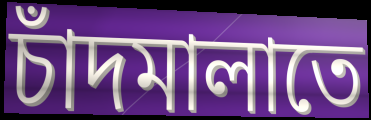
চাঁদমালাতে